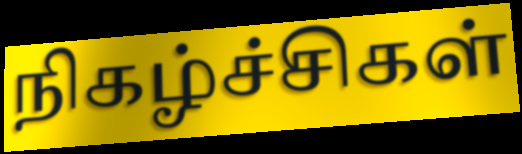
நிகழ்ச்சிகள்